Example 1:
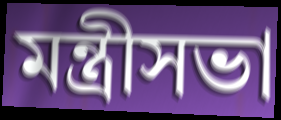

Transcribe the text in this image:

মন্ত্রীসভা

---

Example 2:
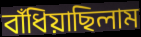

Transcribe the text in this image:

বাঁধিয়াছিলাম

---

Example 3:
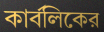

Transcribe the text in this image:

কার্বলিকের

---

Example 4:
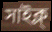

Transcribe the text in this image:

সাইক্ল্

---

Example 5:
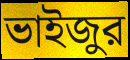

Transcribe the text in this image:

ভাইজুর